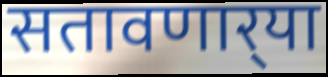
सतावणार्‍या